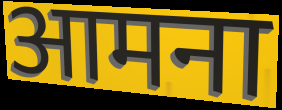
आमना